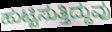
ಹುಟ್ಟಿಸುತ್ತಿದ್ದುವು